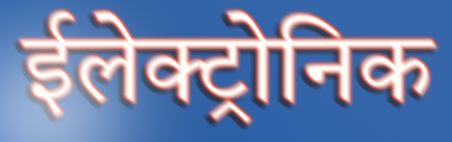
ईलेक्ट्रोनिक